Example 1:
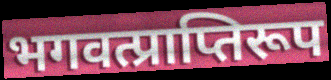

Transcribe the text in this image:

भगवत्प्राप्तिरूप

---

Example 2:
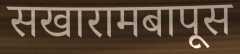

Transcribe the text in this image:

सखारामबापूस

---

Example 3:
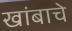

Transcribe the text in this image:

खांबाचे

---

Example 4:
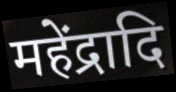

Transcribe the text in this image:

महेंद्रादि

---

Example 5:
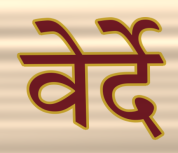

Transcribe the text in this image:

वेर्दे